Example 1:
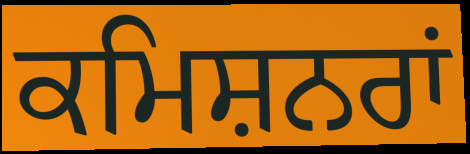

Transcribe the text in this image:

ਕਮਿਸ਼ਨਰਾਂ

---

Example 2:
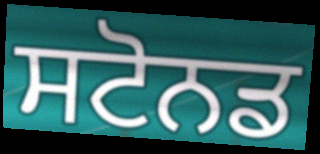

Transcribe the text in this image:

ਸਟੋਨਡ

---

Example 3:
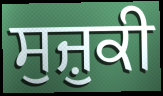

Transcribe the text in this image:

ਸੁਜ਼ੁਕੀ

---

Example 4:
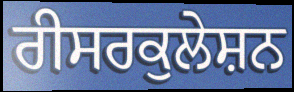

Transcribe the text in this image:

ਰੀਸਰਕੁਲੇਸ਼ਨ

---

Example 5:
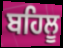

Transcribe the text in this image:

ਬਹਿਲੂ